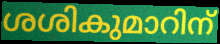
ശശികുമാറിന്